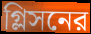
গ্লিসনের